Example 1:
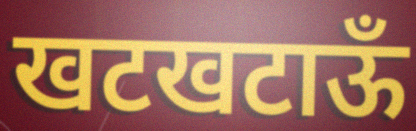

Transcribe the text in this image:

खटखटाऊँ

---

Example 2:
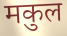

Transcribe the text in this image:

मकुल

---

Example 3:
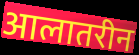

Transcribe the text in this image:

आलातरीन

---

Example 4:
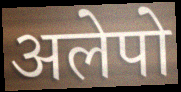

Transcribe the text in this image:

अलेपो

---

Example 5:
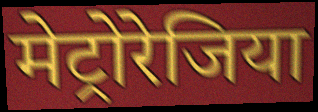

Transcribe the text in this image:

मेट्रोरेजिया